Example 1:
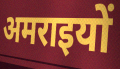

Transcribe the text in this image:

अमराइयों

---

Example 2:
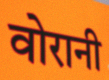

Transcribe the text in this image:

वोरानी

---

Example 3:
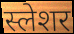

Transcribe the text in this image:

स्लेशर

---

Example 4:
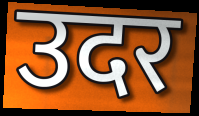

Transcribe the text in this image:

उदर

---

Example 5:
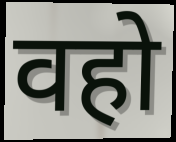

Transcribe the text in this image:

वहो